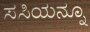
ಸಸಿಯನ್ನೂ